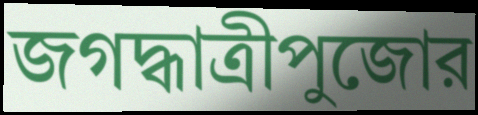
জগদ্ধাত্রীপুজোর